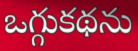
ఒగ్గుకథను